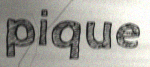
pique